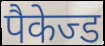
पैकेज्ड